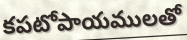
కపటోపాయములతో